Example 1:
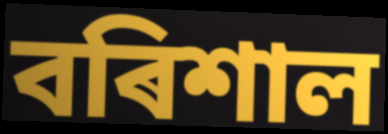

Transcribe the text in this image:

বৰিশাল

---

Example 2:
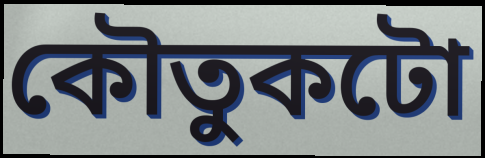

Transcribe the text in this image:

কৌতুকটো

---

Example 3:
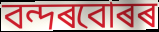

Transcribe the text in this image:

বন্দৰবোৰৰ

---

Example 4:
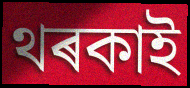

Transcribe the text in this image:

থৰকাই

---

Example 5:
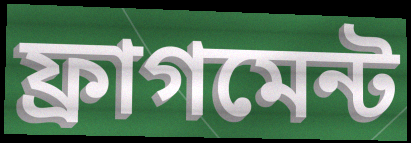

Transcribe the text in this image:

ফ্ৰাগমেন্ট